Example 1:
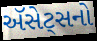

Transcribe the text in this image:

ઍસેટ્સનો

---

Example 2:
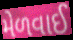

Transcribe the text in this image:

મેળવાઈ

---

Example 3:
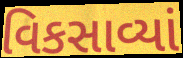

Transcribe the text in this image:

વિકસાવ્યાં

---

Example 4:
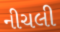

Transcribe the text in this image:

નીચલી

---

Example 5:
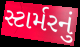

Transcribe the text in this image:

સ્ટાર્મરનું